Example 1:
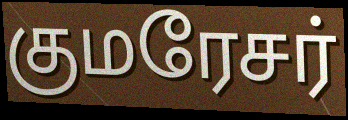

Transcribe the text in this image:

குமரேசர்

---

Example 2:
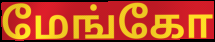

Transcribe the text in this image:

மேங்கோ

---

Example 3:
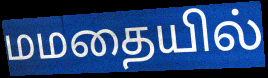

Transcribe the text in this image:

மமதையில்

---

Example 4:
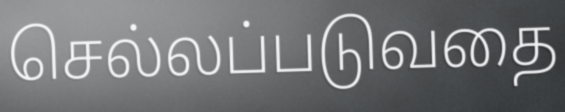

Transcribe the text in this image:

செல்லப்படுவதை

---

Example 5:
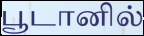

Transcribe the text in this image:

பூடானில்